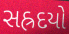
સહ્રદયો